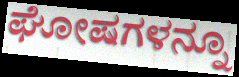
ಘೋಷಗಳನ್ನೂ